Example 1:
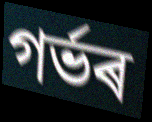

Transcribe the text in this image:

গৰ্ভৰ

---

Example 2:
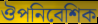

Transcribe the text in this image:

ঔপনিবেশিক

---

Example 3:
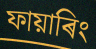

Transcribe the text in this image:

ফায়াৰিং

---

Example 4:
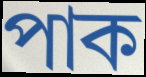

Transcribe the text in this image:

পাক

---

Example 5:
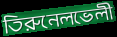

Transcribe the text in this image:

তিৰুনেলভেলী